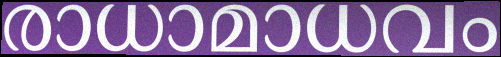
രാധാമാധവം